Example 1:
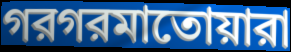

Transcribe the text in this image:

গরগরমাতোয়ারা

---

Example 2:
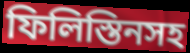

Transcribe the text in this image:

ফিলিস্তিনসহ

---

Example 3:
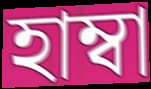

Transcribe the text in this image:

হাম্বা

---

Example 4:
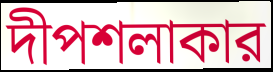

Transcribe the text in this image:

দীপশলাকার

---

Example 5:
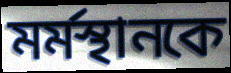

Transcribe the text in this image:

মর্মস্থানকে